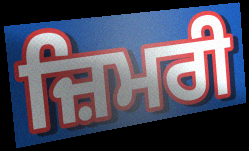
ਜ਼ਿਮਰੀ